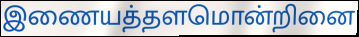
இணையத்தளமொன்றினை